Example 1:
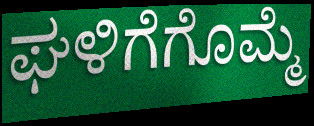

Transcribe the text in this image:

ಘಳಿಗೆಗೊಮ್ಮೆ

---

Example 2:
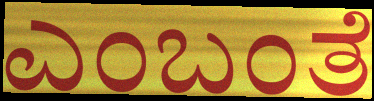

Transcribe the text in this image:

ಎಂಬಂತೆ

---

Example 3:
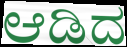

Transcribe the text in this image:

ಆಡಿದ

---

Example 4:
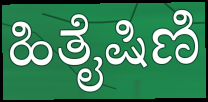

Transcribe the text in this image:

ಹಿತೈಷಿಣಿ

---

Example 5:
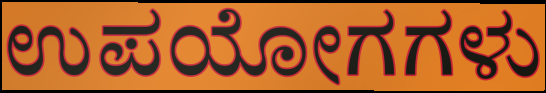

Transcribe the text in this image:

ಉಪಯೋಗಗಳು